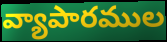
వ్యాపారముల